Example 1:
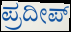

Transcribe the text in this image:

ಪ್ರದೀಪ್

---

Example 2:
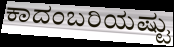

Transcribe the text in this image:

ಕಾದಂಬರಿಯಷ್ಟು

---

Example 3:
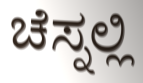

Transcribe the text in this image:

ಚೆಸ್ನಲ್ಲಿ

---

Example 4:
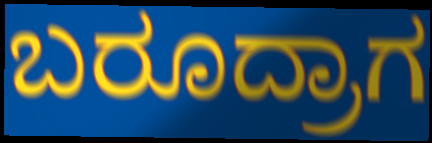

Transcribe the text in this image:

ಬರೂದ್ರಾಗ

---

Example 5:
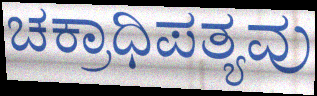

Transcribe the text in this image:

ಚಕ್ರಾಧಿಪತ್ಯವು